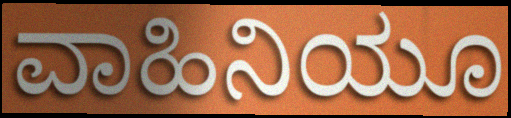
ವಾಹಿನಿಯೂ